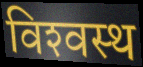
विश्वस्थ